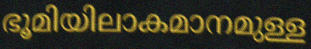
ഭൂമിയിലാകമാനമുള്ള